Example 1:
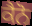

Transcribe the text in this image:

ਕੈਨੋ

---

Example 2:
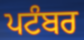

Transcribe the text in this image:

ਪਟੰਬਰ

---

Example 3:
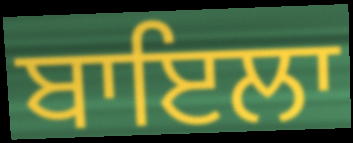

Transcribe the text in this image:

ਬਾਇਲਾ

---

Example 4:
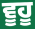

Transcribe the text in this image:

ਵੂਹੂ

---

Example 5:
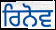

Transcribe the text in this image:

ਰਿਨੋਵ